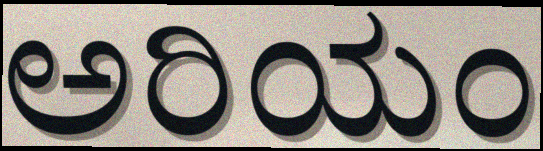
ಅರಿಯಂ